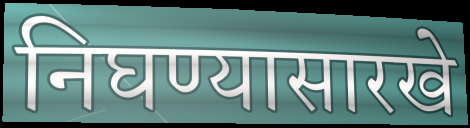
निघण्यासारखे